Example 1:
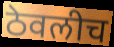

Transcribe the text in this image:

ठेवलीच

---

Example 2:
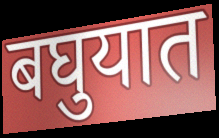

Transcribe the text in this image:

बघुयात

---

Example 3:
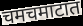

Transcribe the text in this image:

चमचमाटात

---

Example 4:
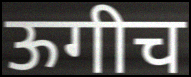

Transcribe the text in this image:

ऊगीच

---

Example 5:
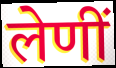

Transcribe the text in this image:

लेणीं